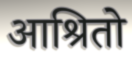
आश्रितो